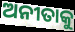
ଅନୀତାକୁ